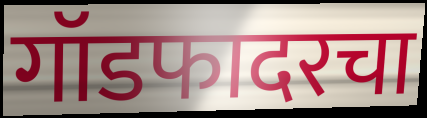
गॉडफादरचा